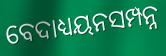
ବେଦାଧ୍ୟୟନସମ୍ପନ୍ନ